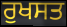
ਰੁਖਸਤ